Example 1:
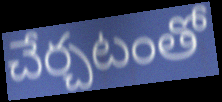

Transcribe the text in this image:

చేర్చటంతో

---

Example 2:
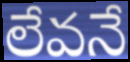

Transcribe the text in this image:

లేవనే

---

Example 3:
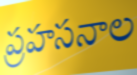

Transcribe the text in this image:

ప్రహసనాల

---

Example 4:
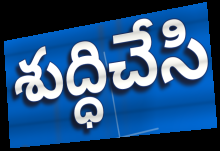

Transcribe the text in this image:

శుద్ధిచేసి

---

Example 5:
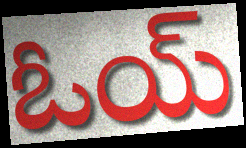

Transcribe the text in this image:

ఓయ్